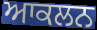
ਆਕਲਨ